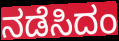
ನಡೆಸಿದಂ